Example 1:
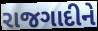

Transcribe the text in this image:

રાજગાદીને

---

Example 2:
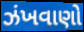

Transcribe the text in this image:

ઝંખવાણો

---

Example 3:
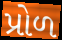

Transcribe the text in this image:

પ્રોળ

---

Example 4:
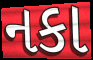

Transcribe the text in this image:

નકા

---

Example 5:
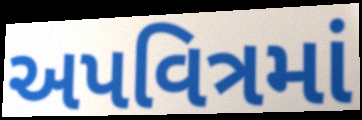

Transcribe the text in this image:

અપવિત્રમાં